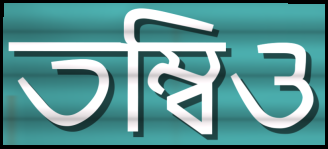
তম্বিও